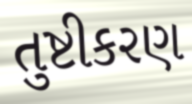
તુષ્ટીકરણ